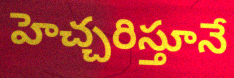
హెచ్చరిస్తూనే